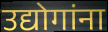
उद्योगांना